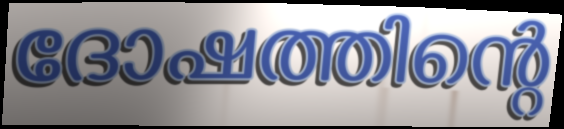
ദോഷത്തിന്റെ